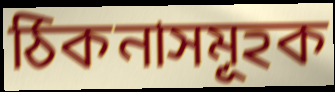
ঠিকনাসমূহক